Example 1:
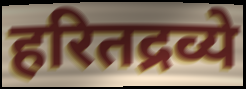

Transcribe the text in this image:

हरितद्रव्ये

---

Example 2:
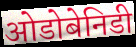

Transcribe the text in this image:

ओडोबेनिडी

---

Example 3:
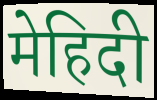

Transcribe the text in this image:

मेहिदी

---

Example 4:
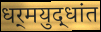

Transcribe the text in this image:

धर्मयुद्धांत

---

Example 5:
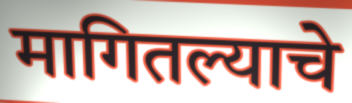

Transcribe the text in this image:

मागितल्याचे